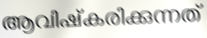
ആവിഷ്‌കരിക്കുന്നത്